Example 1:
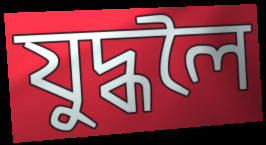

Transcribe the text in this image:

যুদ্ধলৈ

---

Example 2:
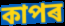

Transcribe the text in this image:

কাপৰ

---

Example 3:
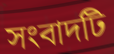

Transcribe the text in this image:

সংবাদটি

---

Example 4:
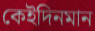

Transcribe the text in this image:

কেইদিনমান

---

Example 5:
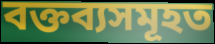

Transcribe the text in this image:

বক্তব্যসমূহত